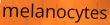
melanocytes